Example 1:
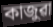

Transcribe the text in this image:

কাজুৱা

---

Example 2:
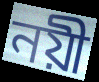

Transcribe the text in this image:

নয়ী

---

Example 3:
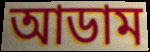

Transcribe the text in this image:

আডাম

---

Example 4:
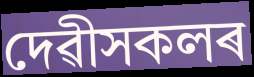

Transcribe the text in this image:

দেৱীসকলৰ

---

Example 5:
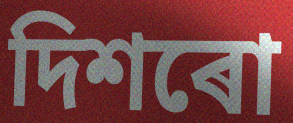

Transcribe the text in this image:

দিশৰো